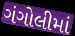
ગંગોલીમાં